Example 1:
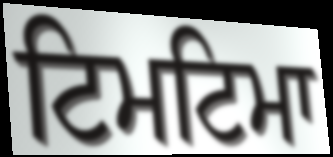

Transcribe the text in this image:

ਟਿਮਟਿਮਾ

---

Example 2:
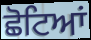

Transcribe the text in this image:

ਛੋਟਿਆਂ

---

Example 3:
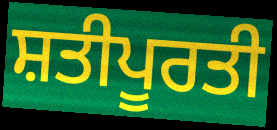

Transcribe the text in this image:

ਸ਼ਤੀਪੂਰਤੀ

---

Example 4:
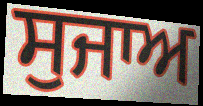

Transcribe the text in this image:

ਸੁਜਾਅ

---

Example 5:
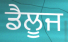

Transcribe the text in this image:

ਡੈਲੂਜ